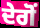
ਦੇਗੋਂ